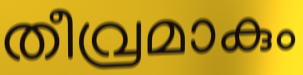
തീവ്രമാകും